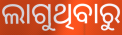
ଲାଗୁଥିବାରୁ